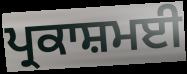
ਪ੍ਰਕਾਸ਼ਮਈ